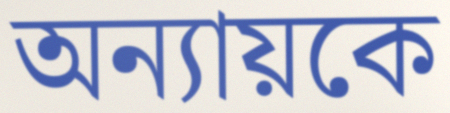
অন্যায়কে